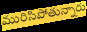
మురిసిపోతున్నారు